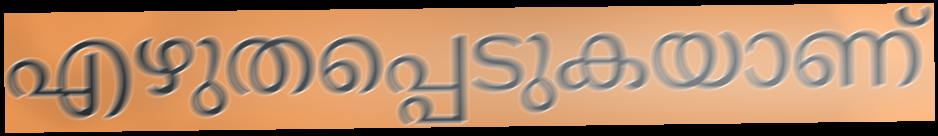
എഴുതപ്പെടുകയാണ്